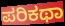
ಪರಿಕಥಾ